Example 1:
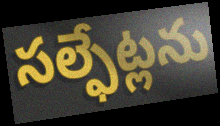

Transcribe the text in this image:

సల్ఫేట్లను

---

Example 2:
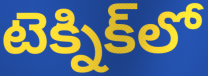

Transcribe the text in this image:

టెక్నిక్‌లో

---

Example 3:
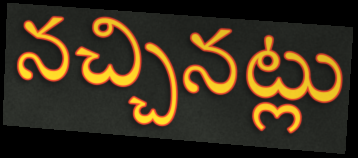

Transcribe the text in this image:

నచ్చినట్లు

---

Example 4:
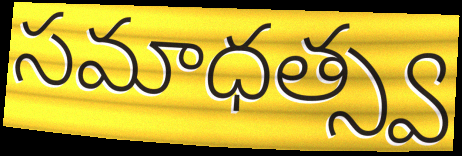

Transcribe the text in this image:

సమాధత్స్వ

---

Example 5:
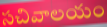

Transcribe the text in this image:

సచివాలయం